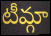
టీమ్గా